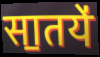
सा॒तये॑